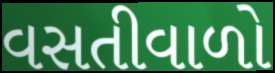
વસતીવાળો